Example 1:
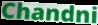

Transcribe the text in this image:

Chandni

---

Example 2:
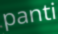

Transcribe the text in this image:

panti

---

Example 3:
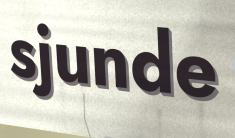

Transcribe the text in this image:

sjunde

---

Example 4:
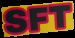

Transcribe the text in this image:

SFT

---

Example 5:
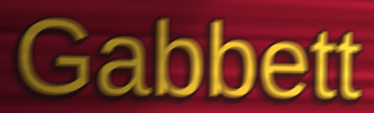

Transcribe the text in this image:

Gabbett